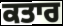
ਕਤਾਰ